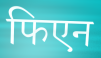
फिएन